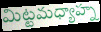
మిట్టమధ్యాహ్న